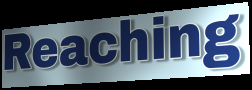
Reaching